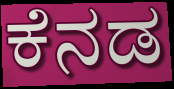
ಕೆನಡ